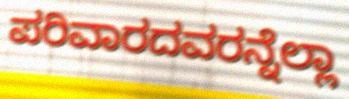
ಪರಿವಾರದವರನ್ನೆಲ್ಲಾ